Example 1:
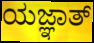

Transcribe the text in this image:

ಯಜ್ಞಾತ್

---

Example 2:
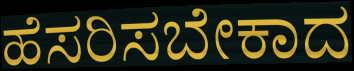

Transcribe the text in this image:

ಹೆಸರಿಸಬೇಕಾದ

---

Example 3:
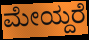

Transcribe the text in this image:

ಮೇಯ್ದರೆ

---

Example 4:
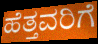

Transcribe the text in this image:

ಹೆತ್ತವರಿಗೆ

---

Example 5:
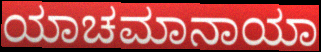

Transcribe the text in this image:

ಯಾಚಮಾನಾಯಾ